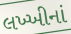
લખ્ખીનાં